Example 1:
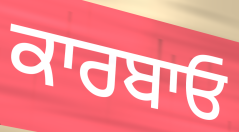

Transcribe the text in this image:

ਕਾਰਬਾਓ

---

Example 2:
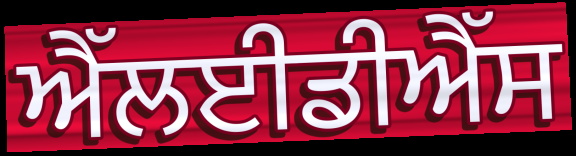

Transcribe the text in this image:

ਐੱਲਈਡੀਐੱਸ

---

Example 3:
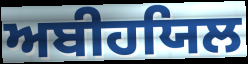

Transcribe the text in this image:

ਅਬੀਹਯਿਲ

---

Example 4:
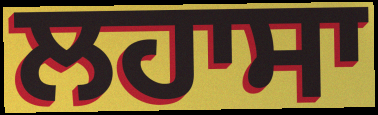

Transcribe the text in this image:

ਲਹਾਸਾ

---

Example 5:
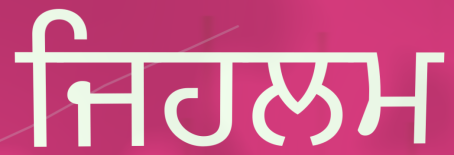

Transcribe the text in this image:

ਜਿਹਲਮ